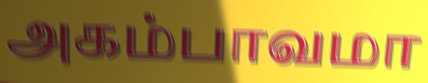
அகம்பாவமா